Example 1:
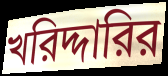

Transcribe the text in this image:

খরিদ্দারির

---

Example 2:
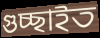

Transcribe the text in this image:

গুচ্ছাইত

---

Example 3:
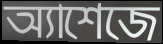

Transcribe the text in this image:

অ্যাশেজে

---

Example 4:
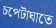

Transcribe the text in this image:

চপেটাঘাতে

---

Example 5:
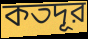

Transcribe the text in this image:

কতদূর